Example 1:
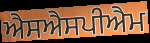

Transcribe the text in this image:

ਐਸਐਸਪੀਐਮ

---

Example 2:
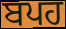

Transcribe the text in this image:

ਬਪਹ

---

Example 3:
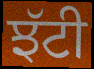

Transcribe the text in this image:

ਝੱਟੀ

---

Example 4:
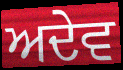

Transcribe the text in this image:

ਅਦੇਵ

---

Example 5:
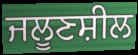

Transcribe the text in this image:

ਜਲੂਣਸ਼ੀਲ